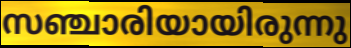
സഞ്ചാരിയായിരുന്നു